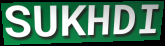
SUKHDI